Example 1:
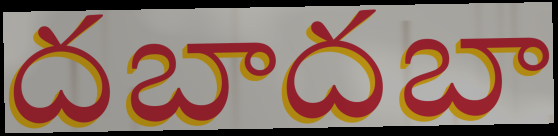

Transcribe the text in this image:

దబాదబా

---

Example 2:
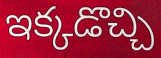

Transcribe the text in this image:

ఇక్కడొచ్చి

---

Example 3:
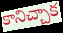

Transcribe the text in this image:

కానిచ్చాక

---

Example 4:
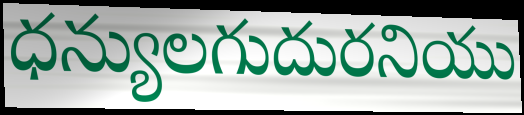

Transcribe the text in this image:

ధన్యులగుదురనియు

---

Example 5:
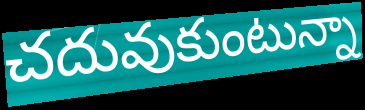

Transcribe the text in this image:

చదువుకుంటున్నా